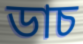
ডাচ